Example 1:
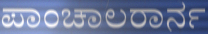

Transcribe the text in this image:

ಪಾಂಚಾಲರಾರ್ನ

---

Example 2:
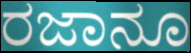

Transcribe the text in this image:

ರಜಾನೂ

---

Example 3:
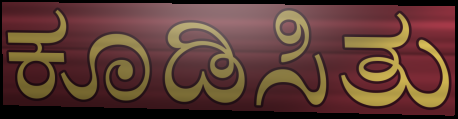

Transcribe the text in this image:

ಕೂಡಿಸಿತು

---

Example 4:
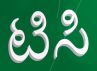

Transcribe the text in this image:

ಟಿಸಿ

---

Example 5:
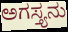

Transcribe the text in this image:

ಅಗಸ್ತ್ಯನು